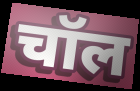
चॉल